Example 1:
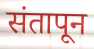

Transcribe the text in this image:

संतापून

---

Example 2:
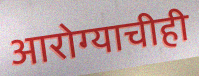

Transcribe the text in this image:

आरोग्याचीही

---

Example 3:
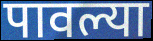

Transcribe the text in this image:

पावल्या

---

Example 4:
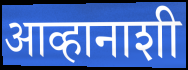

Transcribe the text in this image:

आव्हानाशी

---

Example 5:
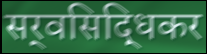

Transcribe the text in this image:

सर्वसिद्धिकर